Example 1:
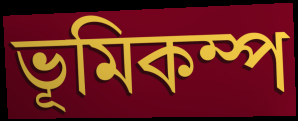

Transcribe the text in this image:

ভূমিকম্প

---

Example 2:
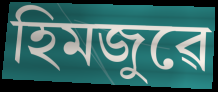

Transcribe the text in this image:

হিমজুৱে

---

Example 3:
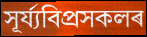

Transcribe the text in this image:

সূৰ্য্যবিপ্ৰসকলৰ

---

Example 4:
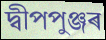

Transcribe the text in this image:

দ্বীপপুঞ্জৰ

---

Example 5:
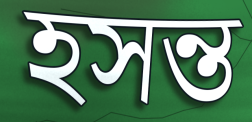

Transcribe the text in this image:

হসন্ত